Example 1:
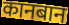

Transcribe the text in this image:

कानबान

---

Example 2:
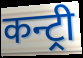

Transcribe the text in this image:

कन्ट्री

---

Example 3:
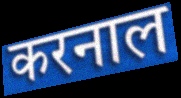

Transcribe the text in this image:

करनाल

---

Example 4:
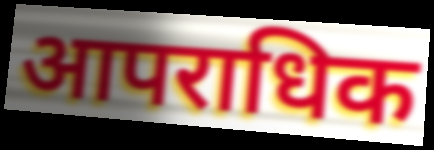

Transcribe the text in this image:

आपराधिक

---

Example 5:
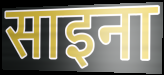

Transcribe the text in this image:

साइना